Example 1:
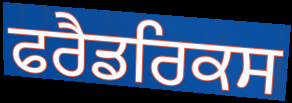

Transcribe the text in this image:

ਫਰੈਡਰਿਕਸ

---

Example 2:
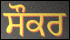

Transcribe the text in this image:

ਸੌਕਰ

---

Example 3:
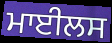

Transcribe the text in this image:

ਮਾਈਲਸ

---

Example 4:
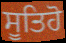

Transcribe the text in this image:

ਸੂਤਿਹੋ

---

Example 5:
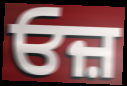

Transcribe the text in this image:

ਓਜ਼